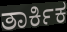
ತಾರ್ಕಿಕ